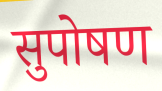
सुपोषण